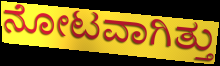
ನೋಟವಾಗಿತ್ತು